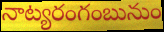
నాట్యరంగంబునుం